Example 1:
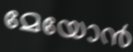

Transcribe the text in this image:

മേയോൻ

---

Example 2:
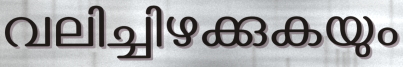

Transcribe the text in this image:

വലിച്ചിഴക്കുകയും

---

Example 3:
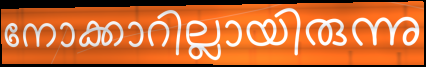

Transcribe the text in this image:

നോക്കാറില്ലായിരുന്നു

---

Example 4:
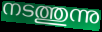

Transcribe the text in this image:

നടത്തുന്നു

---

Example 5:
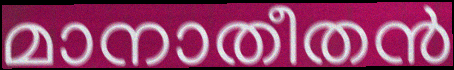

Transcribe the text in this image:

മാനാതീതൻ